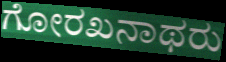
ಗೋರಖನಾಥರು